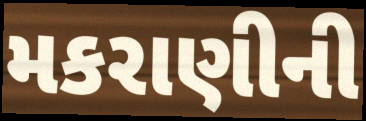
મકરાણીની